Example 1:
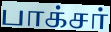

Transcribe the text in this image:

பாக்சர்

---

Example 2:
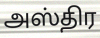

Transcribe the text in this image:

அஸ்திர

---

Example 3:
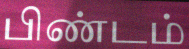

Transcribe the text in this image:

பிண்டம்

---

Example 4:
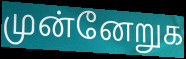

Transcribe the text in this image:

முன்னேறுக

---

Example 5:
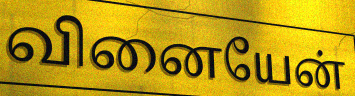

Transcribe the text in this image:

வினையேன்